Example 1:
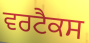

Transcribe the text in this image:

ਵਰਟੈਕਸ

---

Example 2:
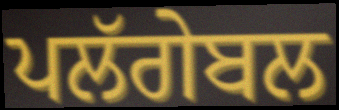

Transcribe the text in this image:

ਪਲੱਗੇਬਲ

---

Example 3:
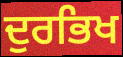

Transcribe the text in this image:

ਦੁਰਭਿਖ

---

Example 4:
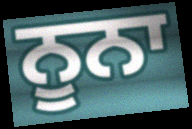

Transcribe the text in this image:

ਨੂਨਾ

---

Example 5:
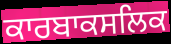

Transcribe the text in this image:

ਕਾਰਬਾਕਸਲਿਕ